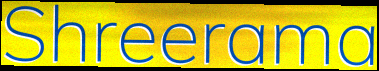
Shreerama